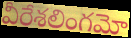
వీరేశలింగమో